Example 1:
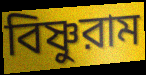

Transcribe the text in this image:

বিষ্ণুরাম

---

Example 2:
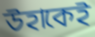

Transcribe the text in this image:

উহাকেই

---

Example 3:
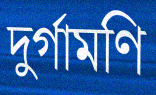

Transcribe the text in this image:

দুর্গামণি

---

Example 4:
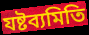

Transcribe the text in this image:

যষ্টব্যমিতি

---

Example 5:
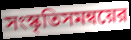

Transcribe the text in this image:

সংস্কৃতিসমন্বয়ের